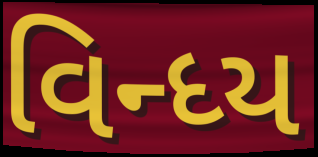
વિન્ધ્ય